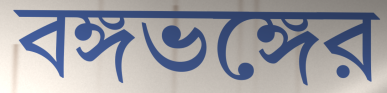
বঙ্গভঙ্গের